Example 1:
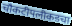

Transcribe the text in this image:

चौकटीपलीकडचा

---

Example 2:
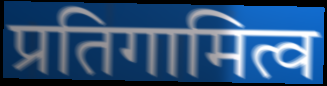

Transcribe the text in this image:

प्रतिगामित्व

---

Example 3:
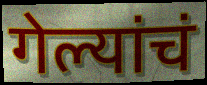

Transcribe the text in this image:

गेल्यांचं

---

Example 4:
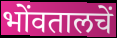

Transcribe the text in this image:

भोंवतालचें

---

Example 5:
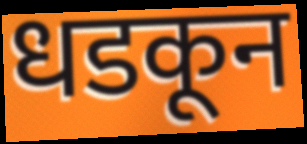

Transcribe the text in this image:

धडकून